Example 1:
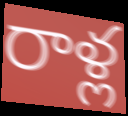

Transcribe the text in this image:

రాళ్ల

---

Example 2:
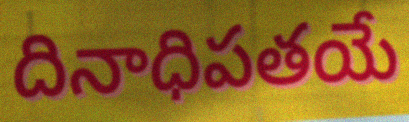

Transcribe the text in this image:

దినాధిపతయే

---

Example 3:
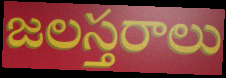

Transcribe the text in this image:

జలస్తరాలు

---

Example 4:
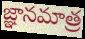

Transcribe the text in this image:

జ్ఞానమాత్ర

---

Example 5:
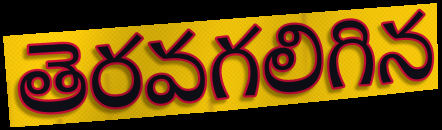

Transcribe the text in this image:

తెరవగలిగిన